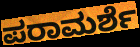
ಪರಾಮರ್ಶೆ